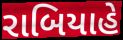
રાબિયાહે